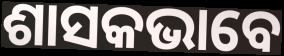
ଶାସକଭାବେ